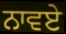
ਨਾਵਏ